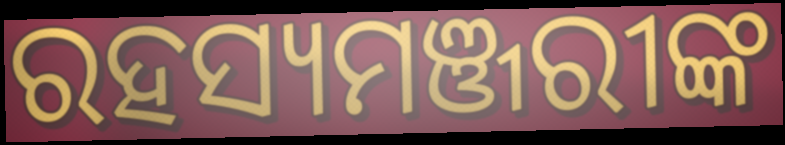
ରହସ୍ୟମଞ୍ଜରୀଙ୍କ